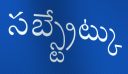
సబ్స్ట్రేట్కు